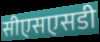
सीएसएसडी